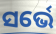
ସର୍ଭେ